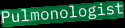
Pulmonologist